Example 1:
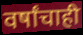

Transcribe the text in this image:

वर्षांचाही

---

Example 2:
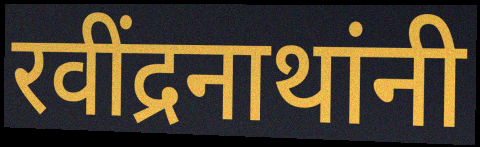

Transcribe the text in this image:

रवींद्रनाथांनी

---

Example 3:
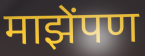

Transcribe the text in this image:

माझेंपण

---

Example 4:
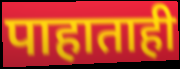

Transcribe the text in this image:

पाहाताही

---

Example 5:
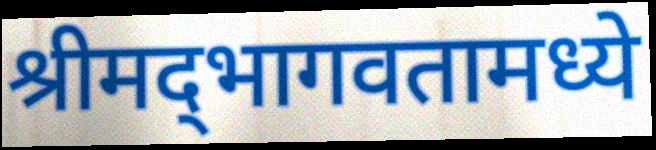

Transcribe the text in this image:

श्रीमद्‌भागवतामध्ये